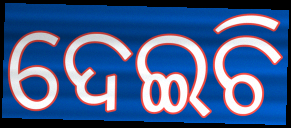
ଦେଇଚି